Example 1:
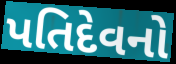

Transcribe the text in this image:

પતિદેવનો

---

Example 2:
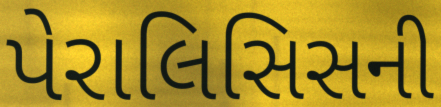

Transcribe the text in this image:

પેરાલિસિસની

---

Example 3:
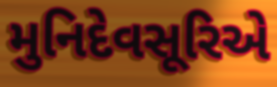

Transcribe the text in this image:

મુનિદેવસૂરિએ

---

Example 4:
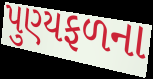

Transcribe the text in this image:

પુણ્યફળના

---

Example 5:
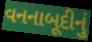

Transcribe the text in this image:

વનનાબૂદીનું